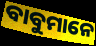
ବାବୁମାନେ